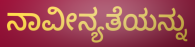
ನಾವೀನ್ಯತೆಯನ್ನು